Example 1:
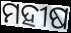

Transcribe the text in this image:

ମହୀଷ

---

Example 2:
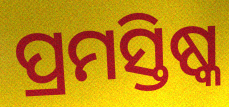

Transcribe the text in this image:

ପ୍ରମସ୍ତିଷ୍କ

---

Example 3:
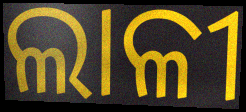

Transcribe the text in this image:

ଲାଳୀ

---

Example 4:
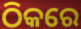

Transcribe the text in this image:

ଠିକରେ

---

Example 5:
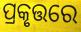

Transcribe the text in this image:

ପ୍ରକୃତ୍ତରେ